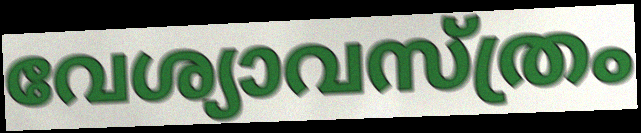
വേശ്യാവസ്ത്രം